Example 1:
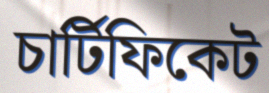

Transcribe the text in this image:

চাৰ্টিফিকেট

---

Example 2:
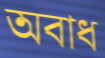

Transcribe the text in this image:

অবাধ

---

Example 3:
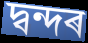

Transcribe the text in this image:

দ্বন্দৰ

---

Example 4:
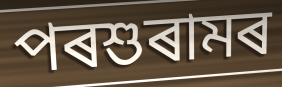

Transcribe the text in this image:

পৰশুৰামৰ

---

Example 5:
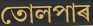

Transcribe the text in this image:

তোলপাৰ